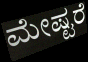
ಮೇಷ್ಟರೆ